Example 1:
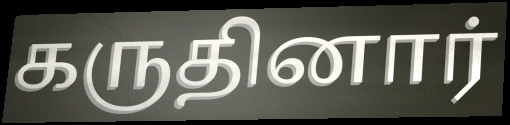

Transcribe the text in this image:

கருதினார்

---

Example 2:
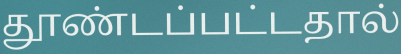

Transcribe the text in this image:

தூண்டப்பட்டதால்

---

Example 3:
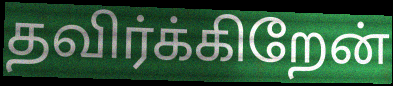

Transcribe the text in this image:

தவிர்க்கிறேன்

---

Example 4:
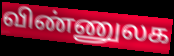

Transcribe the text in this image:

விண்ணுலக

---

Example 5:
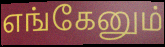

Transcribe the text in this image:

எங்கேனும்